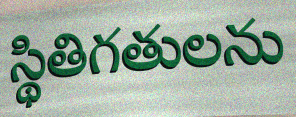
స్థితిగతులను